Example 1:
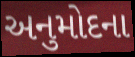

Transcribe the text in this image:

અનુમોદના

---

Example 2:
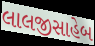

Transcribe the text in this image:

લાલજીસાહેબ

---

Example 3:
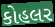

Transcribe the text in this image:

કોહલર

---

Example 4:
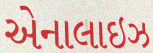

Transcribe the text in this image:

એનાલાઇઝ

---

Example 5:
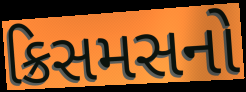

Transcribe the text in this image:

ક્રિસમસનો